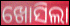
ଖୋସିଲା